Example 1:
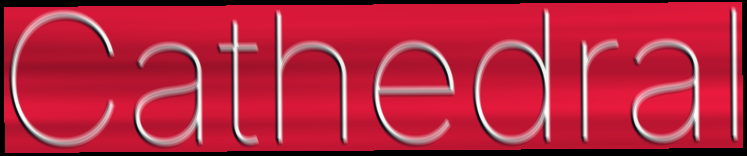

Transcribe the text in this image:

Cathedral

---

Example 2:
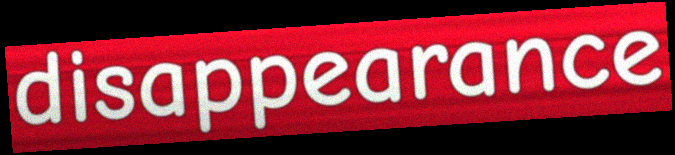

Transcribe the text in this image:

disappearance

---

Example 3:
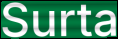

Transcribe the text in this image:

Surta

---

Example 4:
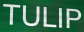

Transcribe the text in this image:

TULIP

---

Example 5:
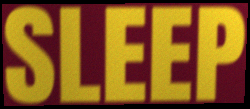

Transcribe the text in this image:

SLEEP